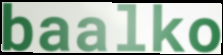
baalko